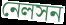
নেলসন